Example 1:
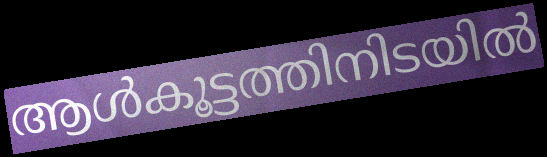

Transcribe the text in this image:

ആൾകൂട്ടത്തിനിടയിൽ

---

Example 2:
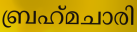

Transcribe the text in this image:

ബ്രഹ്‌മചാരി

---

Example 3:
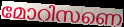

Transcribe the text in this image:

മോറിസണെ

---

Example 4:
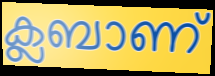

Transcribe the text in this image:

ക്ലബാണ്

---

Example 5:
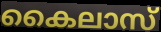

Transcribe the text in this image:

കൈലാസ്